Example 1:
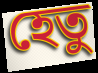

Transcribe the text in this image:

হেতু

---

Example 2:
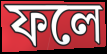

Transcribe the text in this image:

ফলে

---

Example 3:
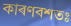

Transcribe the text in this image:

কাৰণবশতঃ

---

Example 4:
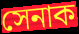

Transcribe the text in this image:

সেনাক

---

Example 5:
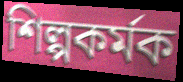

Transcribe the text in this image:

শিল্পকৰ্মক